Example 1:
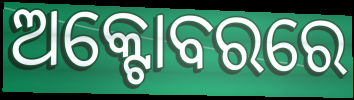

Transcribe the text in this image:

ଅକ୍ଟୋବରରେ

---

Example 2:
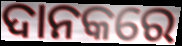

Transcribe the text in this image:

ଦାନକରେ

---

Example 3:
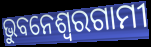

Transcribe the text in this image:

ଭୁବନେଶ୍ୱରଗାମୀ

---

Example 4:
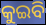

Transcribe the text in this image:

କୁଇବି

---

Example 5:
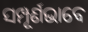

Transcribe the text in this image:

ସମ୍ପୂର୍ଣଭାବେ